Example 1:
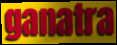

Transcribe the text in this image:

ganatra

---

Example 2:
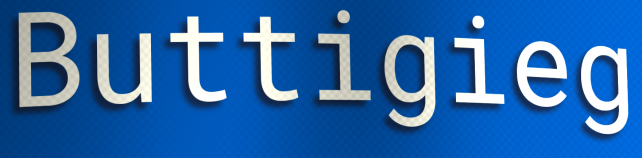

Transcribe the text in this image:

Buttigieg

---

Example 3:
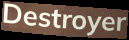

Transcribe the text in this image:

Destroyer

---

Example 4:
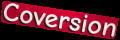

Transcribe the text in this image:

Coversion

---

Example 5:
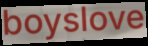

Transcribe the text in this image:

boyslove